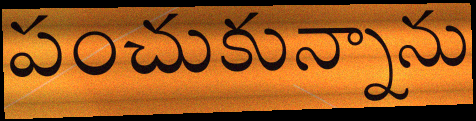
పంచుకున్నాను